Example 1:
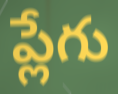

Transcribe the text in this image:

ప్లేగు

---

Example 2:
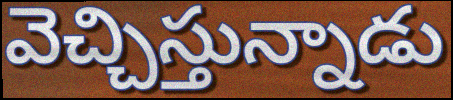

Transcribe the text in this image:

వెచ్చిస్తున్నాడు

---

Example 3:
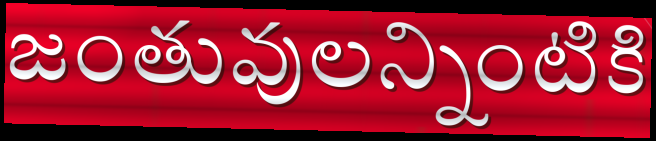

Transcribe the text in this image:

జంతువులన్నింటికి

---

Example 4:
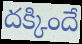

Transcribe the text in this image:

దక్కిందే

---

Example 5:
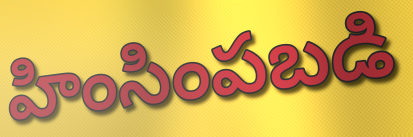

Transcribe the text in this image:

హింసింపబడి